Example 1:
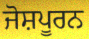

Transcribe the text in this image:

ਜੋਸ਼ਪੂਰਨ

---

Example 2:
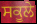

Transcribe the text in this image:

ਸਕੂਲੇ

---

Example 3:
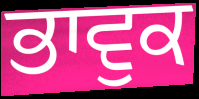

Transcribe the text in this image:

ਭਾਵੁਕ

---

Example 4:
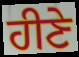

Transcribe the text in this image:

ਹੀਣੇ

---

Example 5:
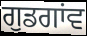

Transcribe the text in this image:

ਗੁਡਗਾਂਵ